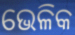
ଭେଳିକ